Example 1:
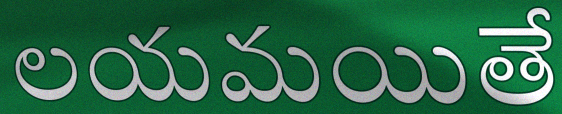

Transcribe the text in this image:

లయమయితే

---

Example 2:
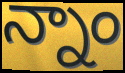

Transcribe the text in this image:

న్నాం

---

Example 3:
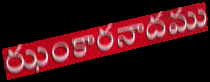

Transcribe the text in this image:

ఝంకారనాదము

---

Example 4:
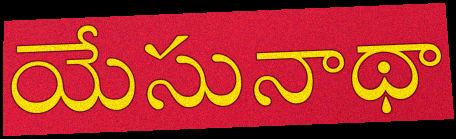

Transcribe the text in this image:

యేసునాథా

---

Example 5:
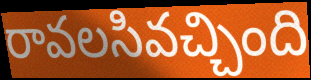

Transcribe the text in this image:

రావలసివచ్చింది